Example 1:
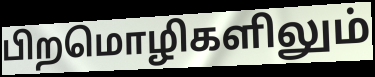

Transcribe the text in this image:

பிறமொழிகளிலும்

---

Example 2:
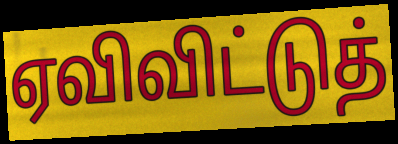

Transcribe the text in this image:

ஏவிவிட்டுத்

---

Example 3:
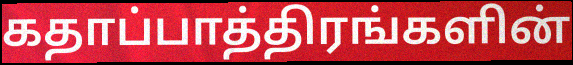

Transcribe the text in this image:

கதாப்பாத்திரங்களின்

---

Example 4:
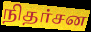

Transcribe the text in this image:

நிதர்சன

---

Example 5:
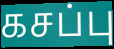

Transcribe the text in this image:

கசப்பு